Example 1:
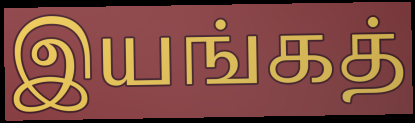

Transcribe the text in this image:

இயங்கத்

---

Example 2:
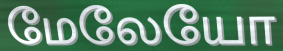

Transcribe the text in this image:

மேலேயோ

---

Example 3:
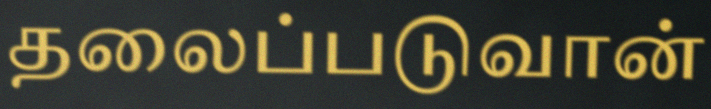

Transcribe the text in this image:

தலைப்படுவான்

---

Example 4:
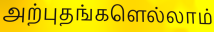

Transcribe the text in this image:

அற்புதங்களெல்லாம்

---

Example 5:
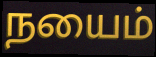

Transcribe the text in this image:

நயைம்